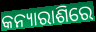
କନ୍ୟାରାଶିରେ